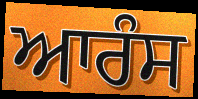
ਆਰੰਸ